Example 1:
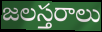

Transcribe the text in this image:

జలస్తరాలు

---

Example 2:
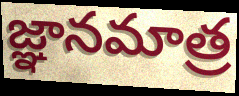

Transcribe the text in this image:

జ్ఞానమాత్ర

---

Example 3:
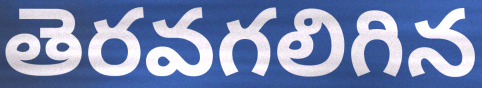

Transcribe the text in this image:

తెరవగలిగిన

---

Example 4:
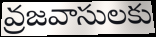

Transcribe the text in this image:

వ్రజవాసులకు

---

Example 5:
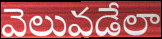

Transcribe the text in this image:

వెలువడేలా